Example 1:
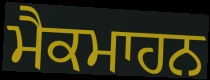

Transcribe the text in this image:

ਮੈਕਮਾਹਨ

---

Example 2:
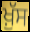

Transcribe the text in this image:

ਖ਼ੁੱਸ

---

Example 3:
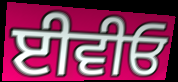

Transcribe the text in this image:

ਈਵੀਓ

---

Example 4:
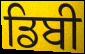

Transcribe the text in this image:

ਡਿਬੀ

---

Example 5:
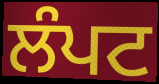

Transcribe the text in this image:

ਲੰਪਟ